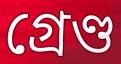
গ্ৰেণ্ড